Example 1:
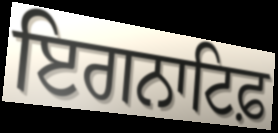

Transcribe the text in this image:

ਇਗਨਾਟਿਫ਼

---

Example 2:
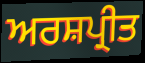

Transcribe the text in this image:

ਅਰਸ਼ਪ੍ਰੀਤ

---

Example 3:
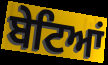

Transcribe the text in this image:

ਬੇਟਿਆਂ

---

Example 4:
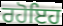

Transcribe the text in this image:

ਰਹੋਇਹ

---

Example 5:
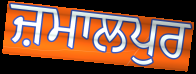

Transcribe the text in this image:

ਜ਼ਮਾਲਪੁਰ